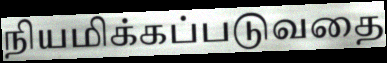
நியமிக்கப்படுவதை